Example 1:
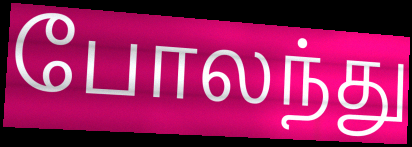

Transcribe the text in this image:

போலந்து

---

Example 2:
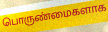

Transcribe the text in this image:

பொருண்மைகளாக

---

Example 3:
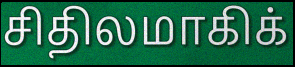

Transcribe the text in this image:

சிதிலமாகிக்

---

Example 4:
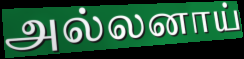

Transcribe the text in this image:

அல்லனாய்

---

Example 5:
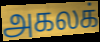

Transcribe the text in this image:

அகலக்